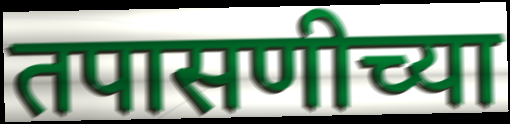
तपासणीच्या